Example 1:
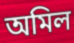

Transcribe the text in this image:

অমিল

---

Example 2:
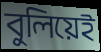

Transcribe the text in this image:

বুলিয়েই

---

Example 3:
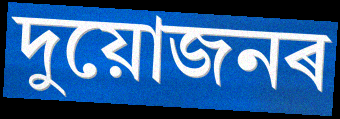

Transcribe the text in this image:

দুয়োজনৰ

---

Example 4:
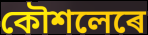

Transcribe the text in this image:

কৌশলেৰে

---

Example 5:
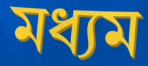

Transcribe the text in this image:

মধ্যম